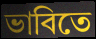
ভাবিতে